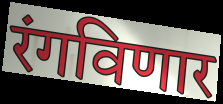
रंगविणार